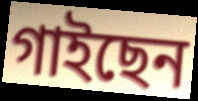
গাইছেন